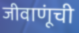
जीवाणूंची